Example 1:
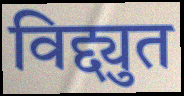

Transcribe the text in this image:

विद्द्युत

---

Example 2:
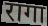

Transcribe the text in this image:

रागा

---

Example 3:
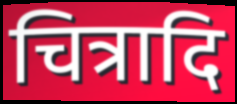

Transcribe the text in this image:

चित्रादि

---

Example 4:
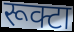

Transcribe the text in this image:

रूक्टा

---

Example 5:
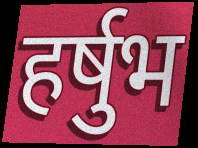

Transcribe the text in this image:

हर्षुभ